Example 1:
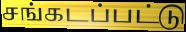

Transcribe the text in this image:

சங்கடப்பட்டு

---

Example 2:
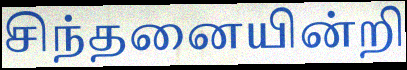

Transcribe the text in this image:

சிந்தனையின்றி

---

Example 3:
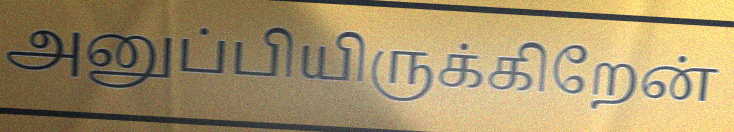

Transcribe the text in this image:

அனுப்பியிருக்கிறேன்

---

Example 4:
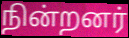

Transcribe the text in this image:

நின்றனர்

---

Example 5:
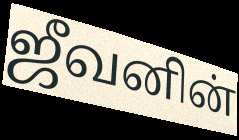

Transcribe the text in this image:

ஜீவனின்